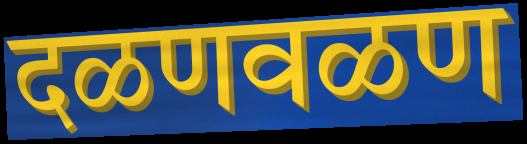
दळणवळण